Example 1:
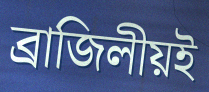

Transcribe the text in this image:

ব্রাজিলীয়ই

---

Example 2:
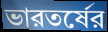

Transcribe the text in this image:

ভারতর্ষের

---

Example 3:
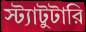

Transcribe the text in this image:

স্ট্যাটুটারি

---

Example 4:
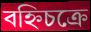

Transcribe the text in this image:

বহ্নিচক্রে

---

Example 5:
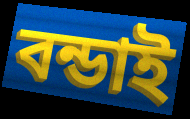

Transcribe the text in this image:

বন্ডাই